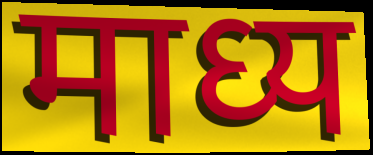
माध्‍य